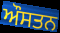
ਔਸਤਨ